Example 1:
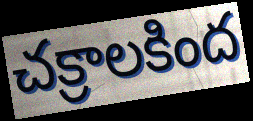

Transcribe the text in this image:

చక్రాలకింద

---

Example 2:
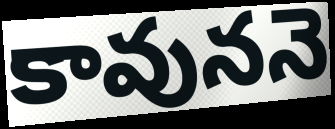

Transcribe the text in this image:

కావుననె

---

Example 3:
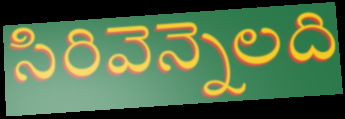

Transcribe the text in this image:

సిరివెన్నెలది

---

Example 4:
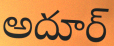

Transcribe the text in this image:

అదూర్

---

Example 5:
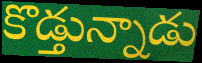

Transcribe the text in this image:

కొడ్తున్నాడు